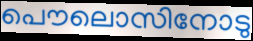
പൌലൊസിനോടു